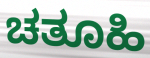
ಚತೂಹಿ